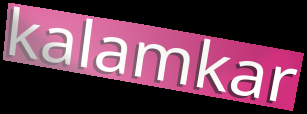
kalamkar